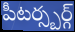
పీటర్స్బర్గ్